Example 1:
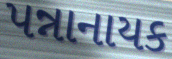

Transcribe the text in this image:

પન્નાનાયક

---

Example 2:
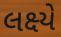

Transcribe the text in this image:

લક્ષ્યે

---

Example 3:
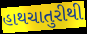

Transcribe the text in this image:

હાથચાતુરીથી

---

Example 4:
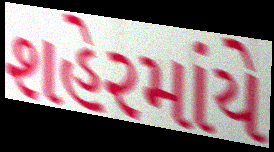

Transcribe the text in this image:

શહેરમાંયે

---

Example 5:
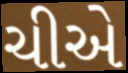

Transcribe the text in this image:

ચીએ